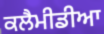
ਕਲੈਮੀਡੀਆ